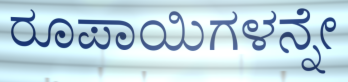
ರೂಪಾಯಿಗಳನ್ನೇ